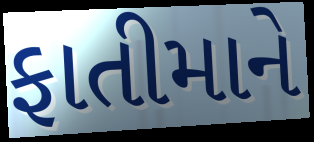
ફાતીમાને